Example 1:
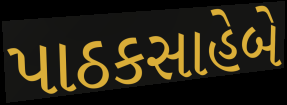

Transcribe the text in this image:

પાઠકસાહેબે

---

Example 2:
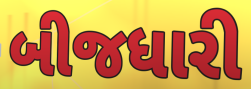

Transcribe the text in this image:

બીજધારી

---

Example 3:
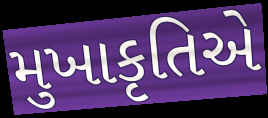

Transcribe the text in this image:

મુખાકૃતિએ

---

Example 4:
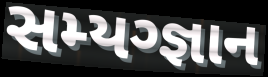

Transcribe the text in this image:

સમ્યગ્જ્ઞાન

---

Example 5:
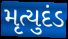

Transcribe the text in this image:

મૃત્યુદંડ